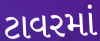
ટાવરમાં